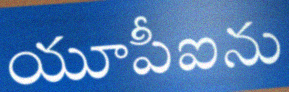
యూపీఐను